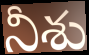
నీశు